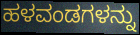
ಹಳವಂಡಗಳನ್ನು